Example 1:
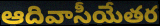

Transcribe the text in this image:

ఆదివాసీయేతర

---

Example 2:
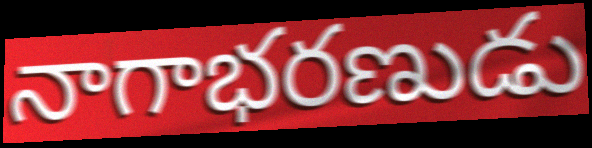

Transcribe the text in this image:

నాగాభరణుడు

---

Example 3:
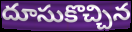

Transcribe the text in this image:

దూసుకొచ్చిన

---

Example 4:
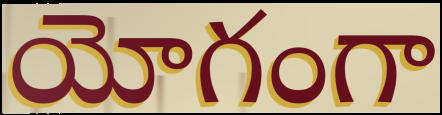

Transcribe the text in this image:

యోగంగా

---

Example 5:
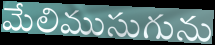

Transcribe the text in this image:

మేలిముసుగును